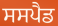
ਸਸਪੈਡ